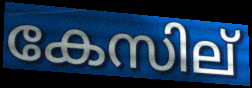
കേസില്